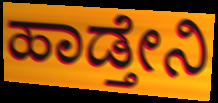
ಹಾಡ್ತೇನಿ